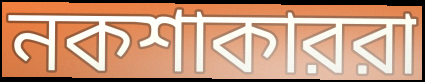
নকশাকাররা